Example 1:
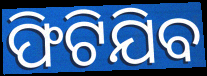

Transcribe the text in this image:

ଫିଟିଯିବ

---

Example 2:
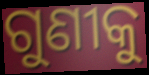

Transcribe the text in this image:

ଗୁଣୀକୁ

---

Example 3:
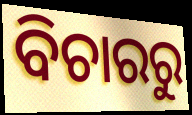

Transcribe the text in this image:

ବିଚାରରୁ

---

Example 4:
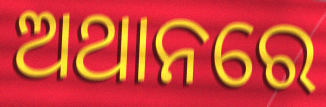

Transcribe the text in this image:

ଅଥାନରେ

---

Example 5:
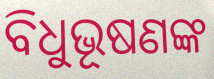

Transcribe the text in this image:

ବିଧୁଭୂଷଣଙ୍କ